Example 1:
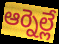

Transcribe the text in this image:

ఆర్నెల్లే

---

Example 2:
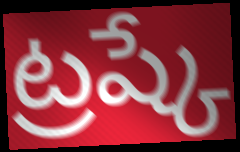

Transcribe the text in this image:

ట్రష్కే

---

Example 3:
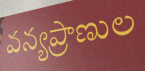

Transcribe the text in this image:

వన్యప్రాణుల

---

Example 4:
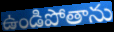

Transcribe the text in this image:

ఉండిపోతాను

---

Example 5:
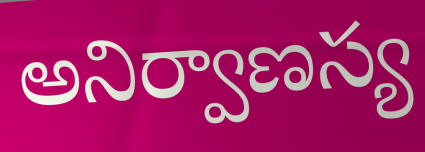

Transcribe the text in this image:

అనిర్వాణస్య